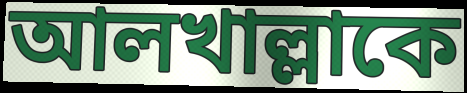
আলখাল্লাকে